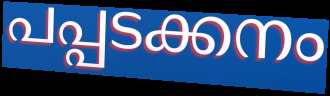
പപ്പടക്കനം